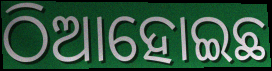
ଠିଆହୋଇଛ